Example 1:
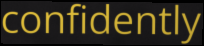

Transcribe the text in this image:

confidently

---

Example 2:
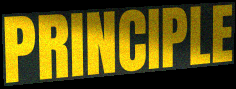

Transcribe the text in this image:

PRINCIPLE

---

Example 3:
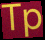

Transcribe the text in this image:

Tp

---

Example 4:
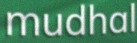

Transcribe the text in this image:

mudhal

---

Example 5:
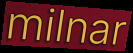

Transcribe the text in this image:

milnar